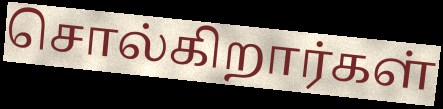
சொல்கிறார்கள்